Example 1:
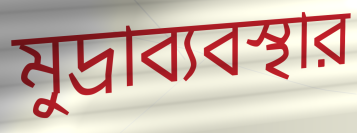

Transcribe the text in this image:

মুদ্রাব্যবস্থার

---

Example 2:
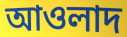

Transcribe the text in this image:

আওলাদ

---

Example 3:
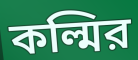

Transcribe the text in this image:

কল্মির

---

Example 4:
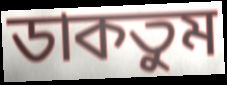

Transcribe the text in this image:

ডাকতুম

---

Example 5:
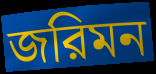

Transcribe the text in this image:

জরিমন